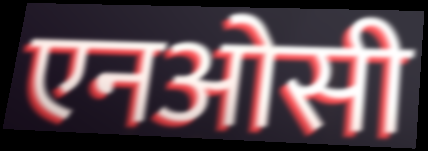
एनओसी